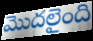
మొదలైంది